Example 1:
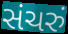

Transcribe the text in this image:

સંચરું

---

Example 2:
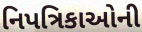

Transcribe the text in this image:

નિપત્રિકાઓની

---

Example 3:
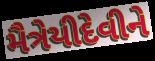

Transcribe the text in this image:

મૈત્રેયીદેવીને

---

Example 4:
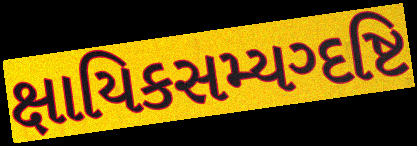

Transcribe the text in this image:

ક્ષાયિકસમ્યગ્દષ્ટિ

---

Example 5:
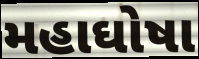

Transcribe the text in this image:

મહાઘોષા